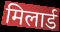
मिलार्ड